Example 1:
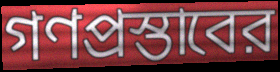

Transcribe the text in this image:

গণপ্রস্তাবের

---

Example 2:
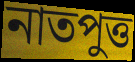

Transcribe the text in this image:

নাতপুত্ত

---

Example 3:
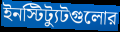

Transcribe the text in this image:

ইনস্টিট্যুটগুলোর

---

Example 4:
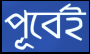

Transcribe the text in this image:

পূর্বেই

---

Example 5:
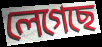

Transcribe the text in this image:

লেগেছে